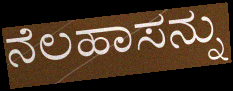
ನೆಲಹಾಸನ್ನು